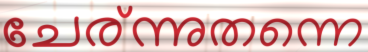
ചേര്ന്നുതന്നെ